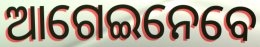
ଆଗେଇନେବେ